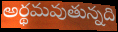
అర్థమవుతున్నది